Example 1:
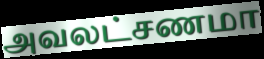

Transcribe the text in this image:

அவலட்சணமா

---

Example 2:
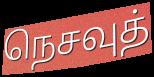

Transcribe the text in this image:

நெசவுத்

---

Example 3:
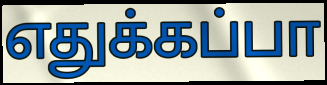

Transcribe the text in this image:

எதுக்கப்பா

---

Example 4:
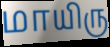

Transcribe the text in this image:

மாயிரு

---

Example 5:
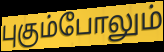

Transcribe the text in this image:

புகும்போலும்